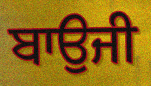
ਬਾਉਜੀ